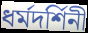
ধর্মদর্শিনী